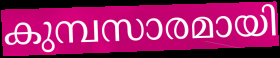
കുമ്പസാരമായി